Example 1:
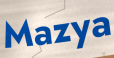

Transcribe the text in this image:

Mazya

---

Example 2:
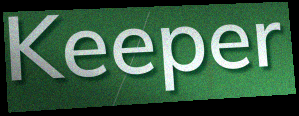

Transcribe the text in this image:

Keeper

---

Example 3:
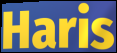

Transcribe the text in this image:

Haris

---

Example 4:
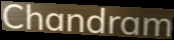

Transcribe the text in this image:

Chandram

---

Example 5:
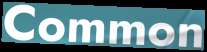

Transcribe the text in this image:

Common